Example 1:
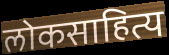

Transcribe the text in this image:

लोकसाहित्य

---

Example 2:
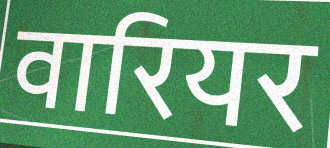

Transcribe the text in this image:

वारियर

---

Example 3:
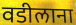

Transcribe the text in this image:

वडीलाना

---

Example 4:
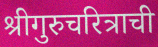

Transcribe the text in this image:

श्रीगुरुचरित्राची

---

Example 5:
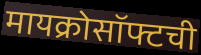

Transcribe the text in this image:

मायक्रोसॉफ्टची